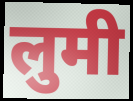
लुमी